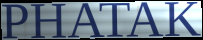
PHATAK